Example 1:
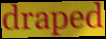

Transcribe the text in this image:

draped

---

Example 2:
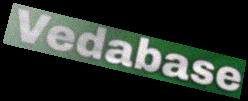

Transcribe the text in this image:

Vedabase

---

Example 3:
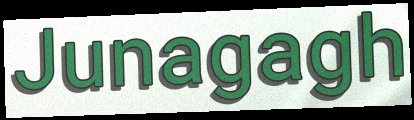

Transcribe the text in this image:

Junagagh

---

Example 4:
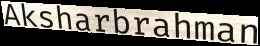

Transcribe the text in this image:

Aksharbrahman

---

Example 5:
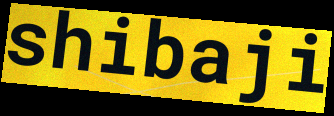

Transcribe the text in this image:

shibaji